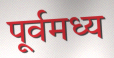
पूर्वमध्य